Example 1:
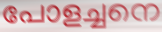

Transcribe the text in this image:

പോളച്ചനെ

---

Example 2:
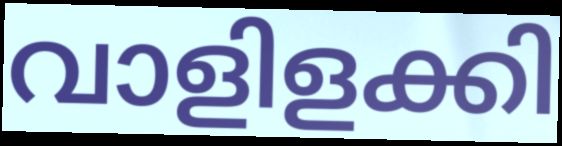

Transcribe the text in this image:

വാളിളക്കി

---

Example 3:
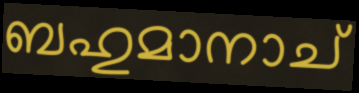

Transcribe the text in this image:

ബഹുമാനാച്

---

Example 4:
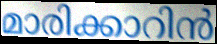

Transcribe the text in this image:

മാരിക്കാറിൻ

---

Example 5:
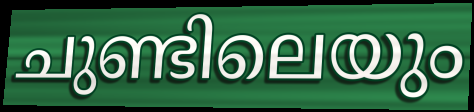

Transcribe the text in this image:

ചുണ്ടിലെയും